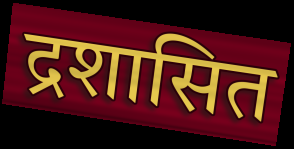
द्रशासित